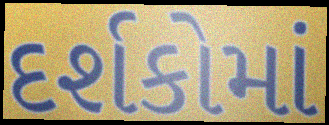
દર્શકોમાં